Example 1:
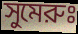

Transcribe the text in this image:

সুমেরুঃ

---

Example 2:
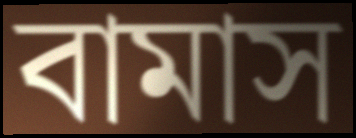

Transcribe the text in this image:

বামাস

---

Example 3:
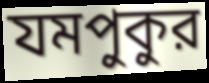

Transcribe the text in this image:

যমপুকুর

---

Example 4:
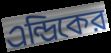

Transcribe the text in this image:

এন্দ্রিকের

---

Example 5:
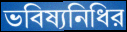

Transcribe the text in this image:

ভবিষ্যনিধির